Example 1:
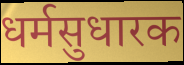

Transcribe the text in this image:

धर्मसुधारक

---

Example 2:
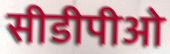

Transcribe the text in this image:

सीडीपीओ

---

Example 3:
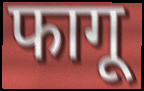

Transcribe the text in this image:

फागू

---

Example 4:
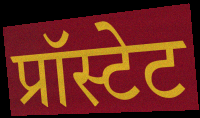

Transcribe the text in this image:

प्रॉस्टेट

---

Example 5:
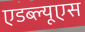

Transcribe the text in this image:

एडब्ल्यूएस